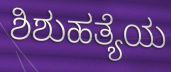
ಶಿಶುಹತ್ಯೆಯ